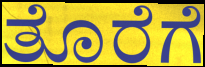
ತೊರೆಗೆ